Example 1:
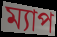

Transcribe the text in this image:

ম্যাপ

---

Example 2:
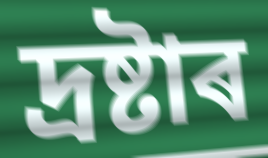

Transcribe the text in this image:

দ্ৰষ্টাৰ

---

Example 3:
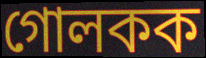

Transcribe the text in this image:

গোলকক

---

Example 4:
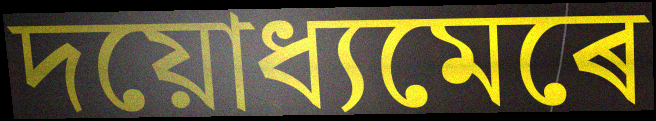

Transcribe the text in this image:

দয়োধ্যমেৰে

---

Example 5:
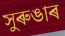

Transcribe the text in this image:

সুৰুঙাৰ